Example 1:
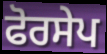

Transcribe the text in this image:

ਫੋਰਸੇਪ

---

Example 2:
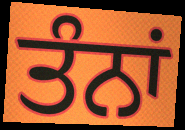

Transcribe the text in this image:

ਤੰਨਾਂ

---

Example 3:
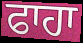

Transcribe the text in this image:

ਫਾਹਾ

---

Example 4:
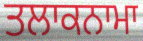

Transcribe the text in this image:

ਤਲਾਕਨਾਮਾ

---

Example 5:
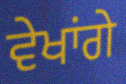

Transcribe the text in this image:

ਵੇਖਾਂਗੇ